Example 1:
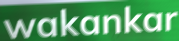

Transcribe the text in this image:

wakankar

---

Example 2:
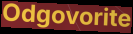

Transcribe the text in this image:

Odgovorite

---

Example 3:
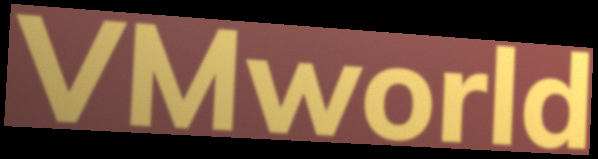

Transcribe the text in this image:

VMworld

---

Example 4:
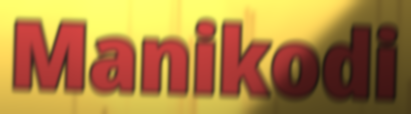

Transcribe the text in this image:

Manikodi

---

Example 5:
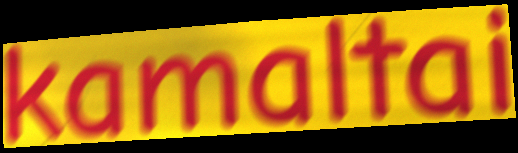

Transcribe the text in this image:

kamaltai